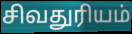
சிவதுரியம்